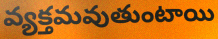
వ్యక్తమవుతుంటాయి